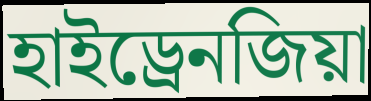
হাইড্রেনজিয়া